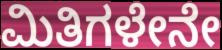
ಮಿತಿಗಳೇನೇ